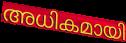
അധികമായി